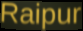
Raipur